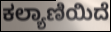
ಕಲ್ಯಾಣಿಯಿದೆ